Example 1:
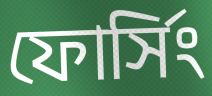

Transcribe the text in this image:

ফোর্সিং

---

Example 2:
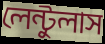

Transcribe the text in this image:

লেন্টুলাস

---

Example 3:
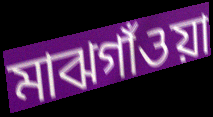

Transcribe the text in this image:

মাঝগাঁওয়া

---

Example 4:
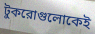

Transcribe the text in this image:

টুকরোগুলোকেই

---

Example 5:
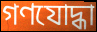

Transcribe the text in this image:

গণযোদ্ধা